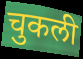
चुकली